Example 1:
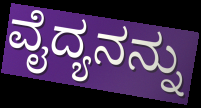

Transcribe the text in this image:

ವೈದ್ಯನನ್ನು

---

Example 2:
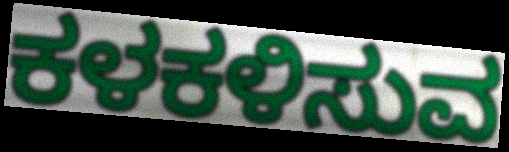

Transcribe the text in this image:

ಕಳಕಳಿಸುವ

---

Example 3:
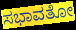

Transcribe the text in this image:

ಸಭಾವತೋ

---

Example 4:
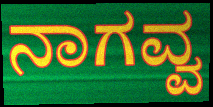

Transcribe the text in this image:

ನಾಗವ್ವ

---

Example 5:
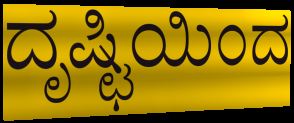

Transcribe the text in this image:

ದೃಷ್ಟಿಯಿಂದ